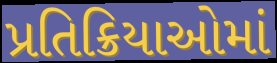
પ્રતિક્રિયાઓમાં